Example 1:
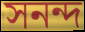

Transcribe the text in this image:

সনন্দ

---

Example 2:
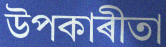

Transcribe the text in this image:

উপকাৰীতা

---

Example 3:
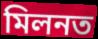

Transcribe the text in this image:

মিলনত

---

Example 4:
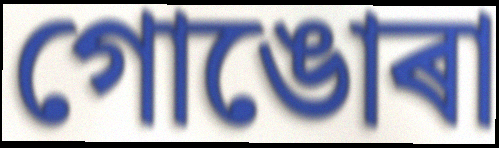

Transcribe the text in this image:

গোঙোৰা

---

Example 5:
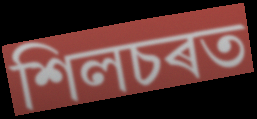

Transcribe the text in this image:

শিলচৰত